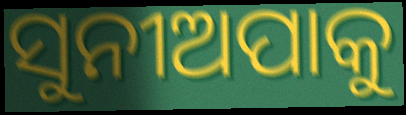
ସୁନୀଅପାକୁ